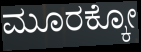
ಮೂರಕ್ಕೋ